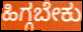
ಹಿಗ್ಗಬೇಕು